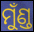
ମୁଁଣ୍ଡ